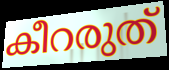
കീറരുത്